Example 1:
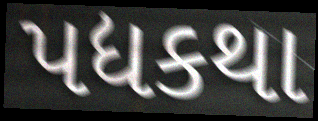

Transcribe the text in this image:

પદ્યકથા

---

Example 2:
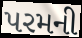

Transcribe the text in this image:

પરમની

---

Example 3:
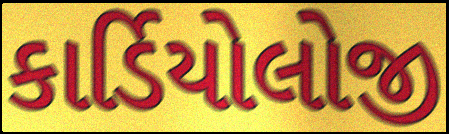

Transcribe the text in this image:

કાર્ડિયોલોજી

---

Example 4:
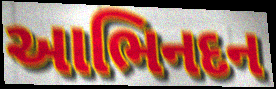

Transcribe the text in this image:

આભિનદન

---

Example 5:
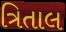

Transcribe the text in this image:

ત્રિતાલ